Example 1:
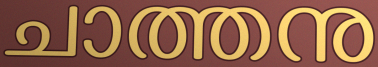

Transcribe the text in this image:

ചാത്തനു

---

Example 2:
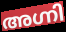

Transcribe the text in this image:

അഗ്നി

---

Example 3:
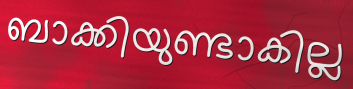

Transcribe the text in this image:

ബാക്കിയുണ്ടാകില്ല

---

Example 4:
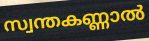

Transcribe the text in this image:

സ്വന്തകണ്ണാൽ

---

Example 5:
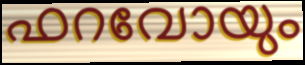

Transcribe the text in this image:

ഫറവോയും